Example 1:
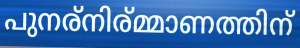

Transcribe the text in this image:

പുനര്നിര്മ്മാണത്തിന്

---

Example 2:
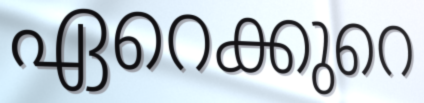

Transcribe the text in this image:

ഏറെക്കുറെ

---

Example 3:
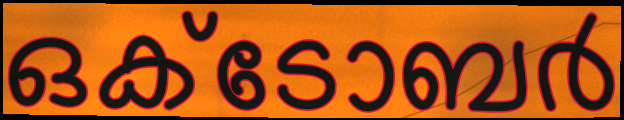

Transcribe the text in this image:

ഒക്ടോബർ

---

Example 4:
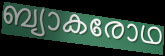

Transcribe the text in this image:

ബ്യാകരോഥ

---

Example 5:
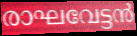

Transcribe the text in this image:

രാഘവേട്ടൻ